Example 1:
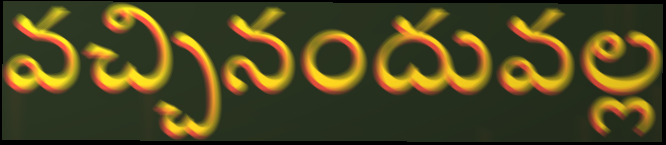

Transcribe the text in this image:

వచ్చినందువల్ల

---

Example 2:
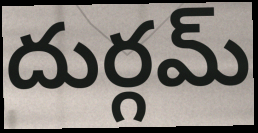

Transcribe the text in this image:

దుర్గమ్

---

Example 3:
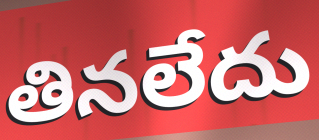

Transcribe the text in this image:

తినలేదు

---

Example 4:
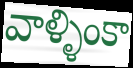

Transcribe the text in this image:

వాళ్ళింకా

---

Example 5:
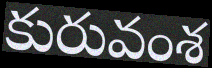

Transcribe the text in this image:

కురువంశ